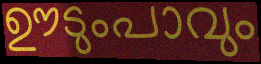
ഊടുംപാവും